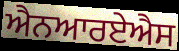
ਐਨਆਰਏਐਸ